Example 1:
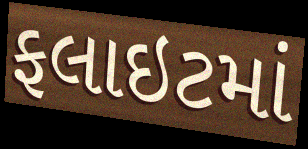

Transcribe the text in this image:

ફલાઇટમાં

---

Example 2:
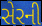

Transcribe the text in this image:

સેરની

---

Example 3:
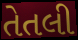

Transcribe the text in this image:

તેતલી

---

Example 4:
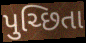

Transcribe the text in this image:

પુચ્છિતા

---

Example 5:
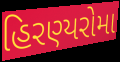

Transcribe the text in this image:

હિરણ્યરોમા